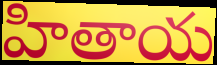
హితాయ